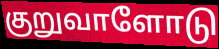
குறுவாளோடு